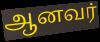
ஆனவர்